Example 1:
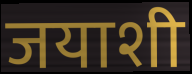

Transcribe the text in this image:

जयाशी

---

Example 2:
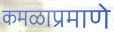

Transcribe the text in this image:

कमळाप्रमाणे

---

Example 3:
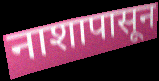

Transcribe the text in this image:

नाशापासून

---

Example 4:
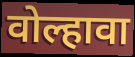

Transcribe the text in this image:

वोल्हावा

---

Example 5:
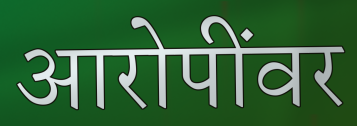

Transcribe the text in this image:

आरोपींवर